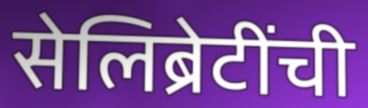
सेलिब्रेटींची